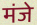
मंजे